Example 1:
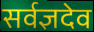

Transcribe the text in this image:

सर्वज्ञदेव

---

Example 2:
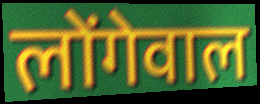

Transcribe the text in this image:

लोंगेवाल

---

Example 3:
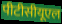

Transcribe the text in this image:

पीटीसीयूएल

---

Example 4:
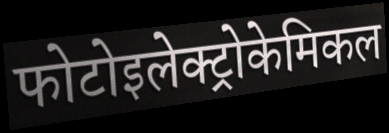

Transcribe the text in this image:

फोटोइलेक्ट्रोकेमिकल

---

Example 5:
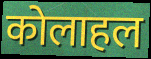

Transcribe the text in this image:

कोलाहल